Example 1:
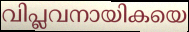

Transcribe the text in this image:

വിപ്ലവനായികയെ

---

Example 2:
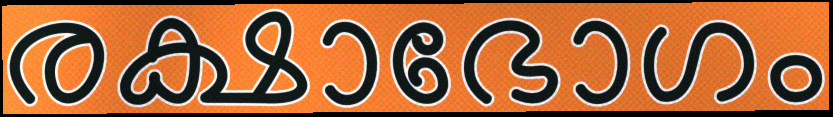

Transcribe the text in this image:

രക്ഷാഭോഗം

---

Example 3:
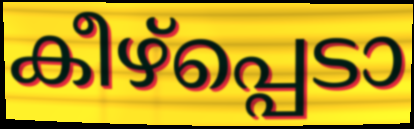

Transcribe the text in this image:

കീഴ്പ്പെടാ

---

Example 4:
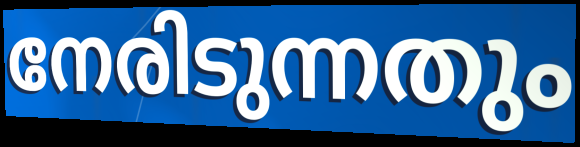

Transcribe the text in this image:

നേരിടുന്നതും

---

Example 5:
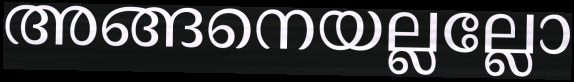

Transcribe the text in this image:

അങ്ങനെയല്ലല്ലോ